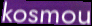
kosmou